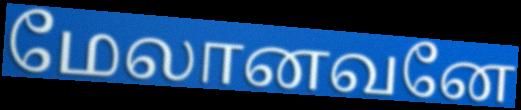
மேலானவனே